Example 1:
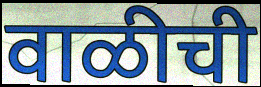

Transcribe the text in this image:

वाळीची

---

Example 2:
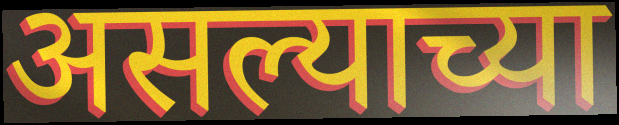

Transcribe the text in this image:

असल्याच्या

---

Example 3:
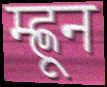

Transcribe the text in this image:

म्ह्णून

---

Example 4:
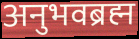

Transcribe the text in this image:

अनुभवब्रह्म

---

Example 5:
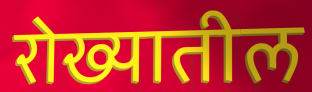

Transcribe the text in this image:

रोख्यातील